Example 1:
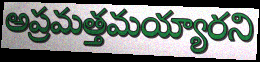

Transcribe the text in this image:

అప్రమత్తమయ్యారని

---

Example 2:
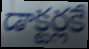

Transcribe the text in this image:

డాక్టర్లకే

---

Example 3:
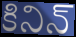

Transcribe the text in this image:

కినిన్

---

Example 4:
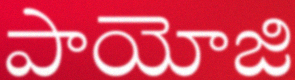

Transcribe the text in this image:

పాయోజి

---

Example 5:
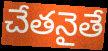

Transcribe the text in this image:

చేతనైతే